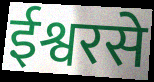
ईश्वरसे